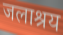
जलाश्रय